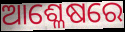
ଆଶ୍ଳେଷରେ